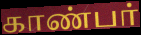
காண்பர்